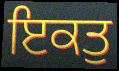
ਇਕਤੁ